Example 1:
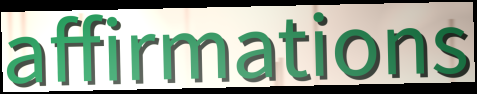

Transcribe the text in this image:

affirmations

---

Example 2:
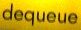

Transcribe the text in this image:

dequeue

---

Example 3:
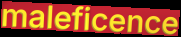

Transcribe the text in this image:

maleficence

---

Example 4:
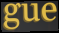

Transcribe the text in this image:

gue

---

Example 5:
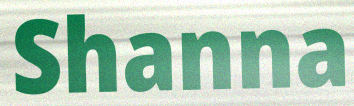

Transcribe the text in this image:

Shanna